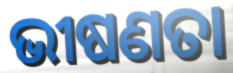
ଭୀଷଣତା